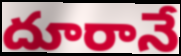
దూరానే